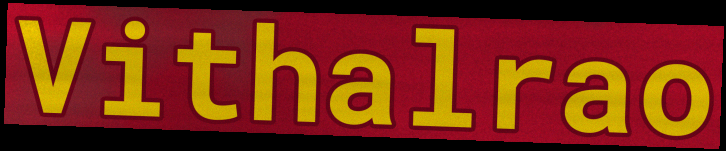
Vithalrao